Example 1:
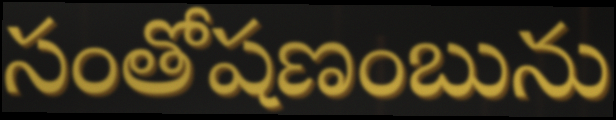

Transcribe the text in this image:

సంతోషణంబును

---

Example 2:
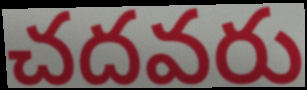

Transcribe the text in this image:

చదవరు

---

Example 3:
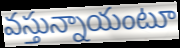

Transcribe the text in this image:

వస్తున్నాయంటూ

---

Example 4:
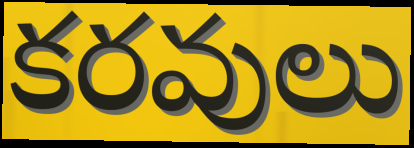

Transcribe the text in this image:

కరవులు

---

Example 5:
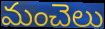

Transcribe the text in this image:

మంచెలు